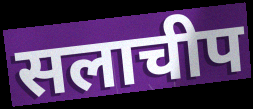
सलाचीप